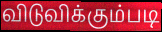
விடுவிக்கும்படி